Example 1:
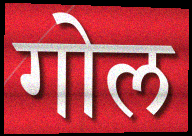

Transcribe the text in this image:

गोल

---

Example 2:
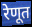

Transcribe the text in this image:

रेणूत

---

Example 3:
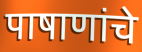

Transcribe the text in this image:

पाषाणांचे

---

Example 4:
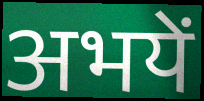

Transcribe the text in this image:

अभयें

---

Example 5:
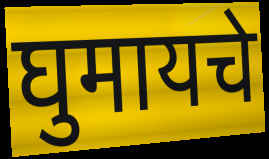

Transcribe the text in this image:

घुमायचे